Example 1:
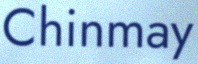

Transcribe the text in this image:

Chinmay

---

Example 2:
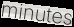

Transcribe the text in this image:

minutes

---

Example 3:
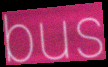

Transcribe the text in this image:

bus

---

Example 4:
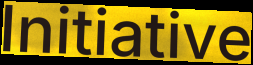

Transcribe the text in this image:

Initiative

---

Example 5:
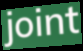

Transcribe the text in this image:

joint